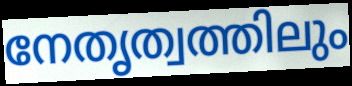
നേതൃത്വത്തിലും